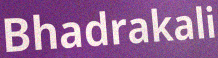
Bhadrakali